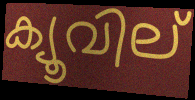
ക്യൂവില്